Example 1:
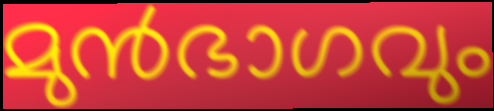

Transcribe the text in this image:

മുൻഭാഗവും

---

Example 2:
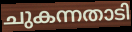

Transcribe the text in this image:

ചുകന്നതാടി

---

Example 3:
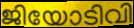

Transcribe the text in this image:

ജിയോടിവി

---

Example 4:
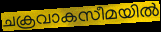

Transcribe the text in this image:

ചക്രവാകസീമയിൽ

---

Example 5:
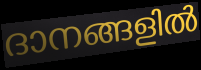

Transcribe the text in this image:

ദാനങ്ങളിൽ